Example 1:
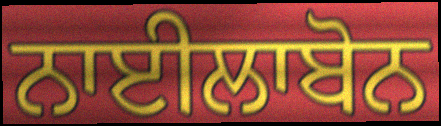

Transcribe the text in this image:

ਨਾਈਲਾਬੋਨ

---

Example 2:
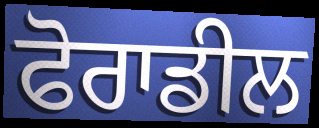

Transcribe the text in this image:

ਫੋਰਾਡੀਲ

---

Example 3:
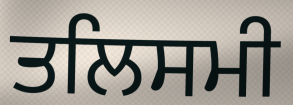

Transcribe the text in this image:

ਤਲਿਸਮੀ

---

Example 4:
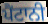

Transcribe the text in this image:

ਪੈਂਟਾਨੀ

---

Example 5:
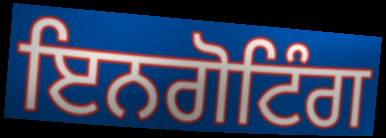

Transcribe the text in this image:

ਇਨਗੋਟਿੰਗ